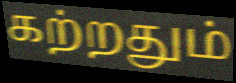
கற்றதும்